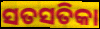
ସତସତିକା